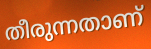
തീരുന്നതാണ്